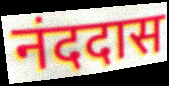
नंददास